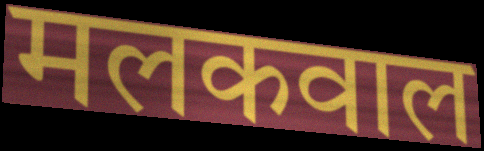
मलकवाल